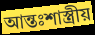
আন্তঃশাস্ত্রীয়